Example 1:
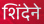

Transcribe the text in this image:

शिंदेने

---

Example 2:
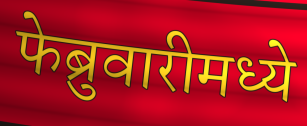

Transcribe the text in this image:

फेब्रुवारीमध्ये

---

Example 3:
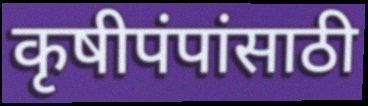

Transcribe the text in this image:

कृषीपंपांसाठी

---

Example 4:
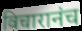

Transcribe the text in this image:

विचारानंच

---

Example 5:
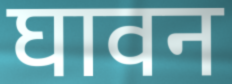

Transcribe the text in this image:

घावन